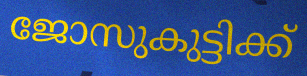
ജോസുകുട്ടിക്ക്